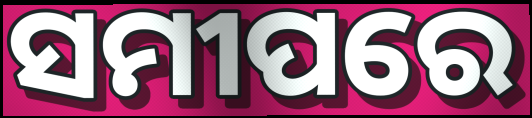
ସମୀପରେ